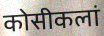
कोसीकलां